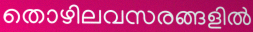
തൊഴിലവസരങ്ങളിൽ